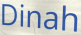
Dinah